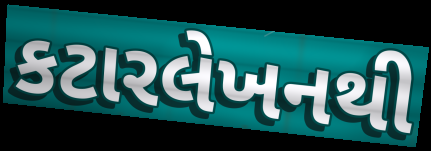
કટારલેખનથી